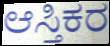
ಆಸ್ತಿಕರ